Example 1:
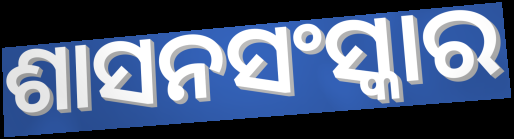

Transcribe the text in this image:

ଶାସନସଂସ୍କାର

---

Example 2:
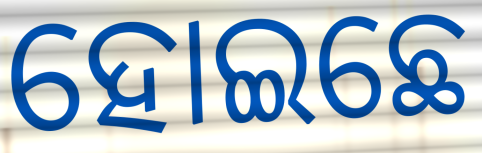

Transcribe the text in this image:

ହୋଇଛେ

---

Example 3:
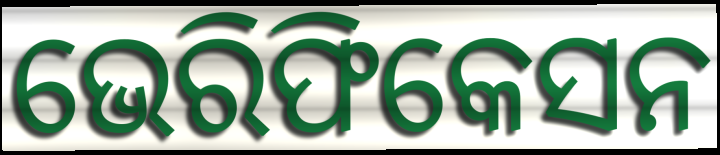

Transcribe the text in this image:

ଭେରିଫିକେସନ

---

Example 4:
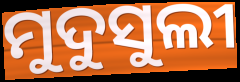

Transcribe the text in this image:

ମୁଦୁସୁଲୀ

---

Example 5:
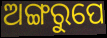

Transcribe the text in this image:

ଅଙ୍ଗରୁପେ